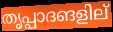
തൃപ്പാദങളില്